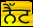
ਨੈੱਟ